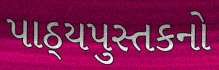
પાઠ્યપુસ્તકનો